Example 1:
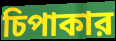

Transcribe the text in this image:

চিপাকার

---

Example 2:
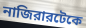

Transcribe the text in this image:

নাজিরারটেকে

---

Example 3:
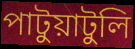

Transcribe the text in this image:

পাটুয়াটুলি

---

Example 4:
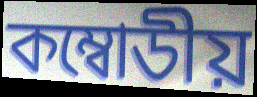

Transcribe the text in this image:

কম্বোডীয়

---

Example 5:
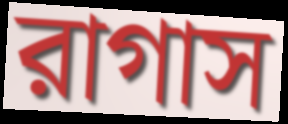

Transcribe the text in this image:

রাগাস